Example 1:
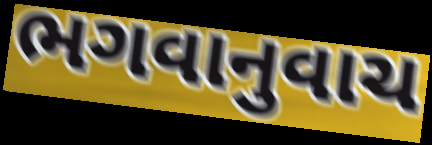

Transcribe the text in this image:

ભગવાનુવાચ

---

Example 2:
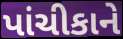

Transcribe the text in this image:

પાંચીકાને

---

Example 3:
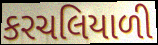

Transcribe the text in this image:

કરચલિયાળી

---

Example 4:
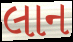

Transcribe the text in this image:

લાન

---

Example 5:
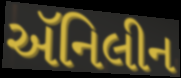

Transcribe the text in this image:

ઍનિલીન